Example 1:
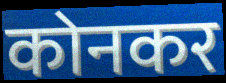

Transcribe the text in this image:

कोनकर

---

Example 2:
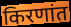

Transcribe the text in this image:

किरणांत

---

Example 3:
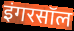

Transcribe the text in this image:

इंगरसॉल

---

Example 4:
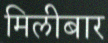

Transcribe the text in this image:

मिलीबार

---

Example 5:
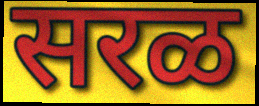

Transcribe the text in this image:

सरळ